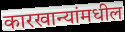
कारखान्यांमधील